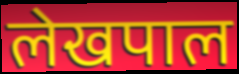
लेखपाल